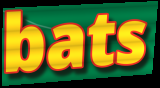
bats